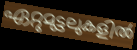
ഏറ്റുമുട്ടലുകളിൽ